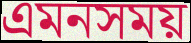
এমনসময়